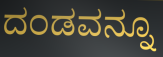
ದಂಡವನ್ನೂ